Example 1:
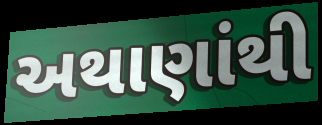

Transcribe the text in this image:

અથાણાંથી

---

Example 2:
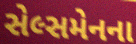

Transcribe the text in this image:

સેલ્સમેનના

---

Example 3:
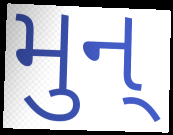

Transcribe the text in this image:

મુન્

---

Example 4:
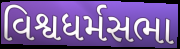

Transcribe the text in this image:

વિશ્વધર્મસભા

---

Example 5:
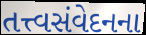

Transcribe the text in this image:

તત્ત્વસંવેદનના